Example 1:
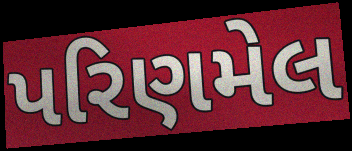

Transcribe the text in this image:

પરિણમેલ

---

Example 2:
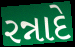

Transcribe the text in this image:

રન્નાદે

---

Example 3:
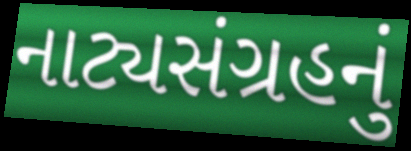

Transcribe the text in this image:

નાટ્યસંગ્રહનું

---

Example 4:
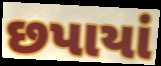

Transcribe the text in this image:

છપાયાં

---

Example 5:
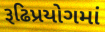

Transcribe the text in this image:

રૂઢિપ્રયોગમાં